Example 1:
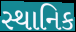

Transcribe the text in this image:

સ્થાનિક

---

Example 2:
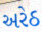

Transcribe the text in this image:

અરેઠ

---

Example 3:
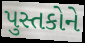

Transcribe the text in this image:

પુસ્તકોને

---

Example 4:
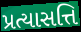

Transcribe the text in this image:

પ્રત્યાસત્તિ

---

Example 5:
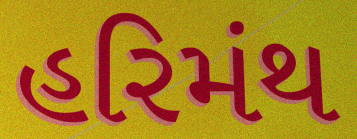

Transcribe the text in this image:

હરિમંથ